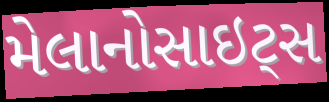
મેલાનોસાઇટ્સ